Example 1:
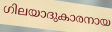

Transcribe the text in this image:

ഗിലയാദുകാരനായ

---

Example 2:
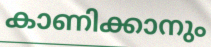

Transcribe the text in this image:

കാണിക്കാനും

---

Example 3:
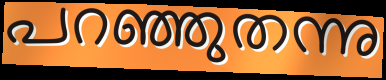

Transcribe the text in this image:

പറഞ്ഞുതന്നു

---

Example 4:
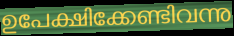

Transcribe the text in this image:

ഉപേക്ഷിക്കേണ്ടിവന്നു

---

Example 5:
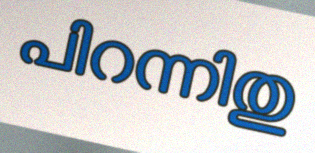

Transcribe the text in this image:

പിറന്നിതു